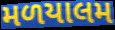
મળયાલમ